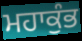
ਮਹਾਕੁੰਭ